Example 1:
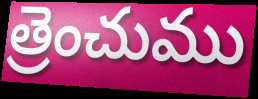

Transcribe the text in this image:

త్రెంచుము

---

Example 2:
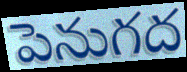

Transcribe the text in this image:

పెనుగద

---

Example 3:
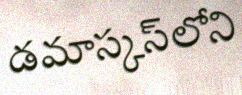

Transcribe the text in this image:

డమాస్కస్‌లోని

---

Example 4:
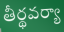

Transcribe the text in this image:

తీర్థవర్యా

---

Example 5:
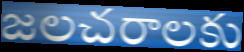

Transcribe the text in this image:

జలచరాలకు